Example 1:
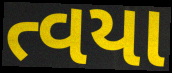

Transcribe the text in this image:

ત્વયા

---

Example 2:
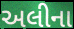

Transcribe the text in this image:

અલીના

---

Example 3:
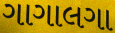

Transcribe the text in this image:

ગાગાલગા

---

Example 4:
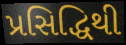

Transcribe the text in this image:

પ્રસિદ્ધિથી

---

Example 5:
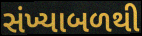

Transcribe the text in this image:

સંખ્યાબળથી